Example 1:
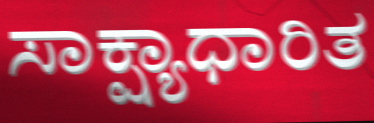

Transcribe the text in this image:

ಸಾಕ್ಷ್ಯಾಧಾರಿತ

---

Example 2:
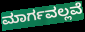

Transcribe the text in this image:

ಮಾರ್ಗವಲ್ಲವೆ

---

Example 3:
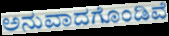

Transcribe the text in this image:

ಅನುವಾದಗೊಂಡಿವೆ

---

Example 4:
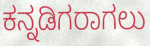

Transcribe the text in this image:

ಕನ್ನಡಿಗರಾಗಲು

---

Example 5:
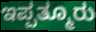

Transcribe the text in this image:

ಇಪ್ಪತ್ಮೂರು